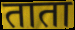
ताता